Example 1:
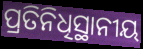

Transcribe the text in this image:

ପ୍ରତିନିଧିସ୍ଥାନୀୟ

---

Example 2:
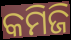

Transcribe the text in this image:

କମିଜି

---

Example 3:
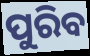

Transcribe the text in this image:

ପୁରିବ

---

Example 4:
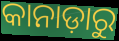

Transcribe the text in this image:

କାନାଡ଼ାରୁ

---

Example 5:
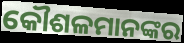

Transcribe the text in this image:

କୌଶଳମାନଙ୍କର